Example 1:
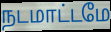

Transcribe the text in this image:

நடமாட்டமே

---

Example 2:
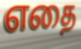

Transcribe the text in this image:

எதை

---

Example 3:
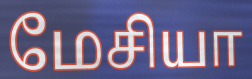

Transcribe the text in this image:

மேசியா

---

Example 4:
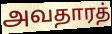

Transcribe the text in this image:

அவதாரத்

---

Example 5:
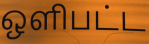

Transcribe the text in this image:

ஒளிபட்ட